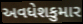
અવધેશકુમાર